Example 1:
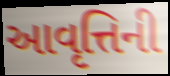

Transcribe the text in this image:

આવૃત્તિની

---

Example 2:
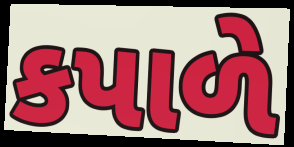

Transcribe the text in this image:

કપાળે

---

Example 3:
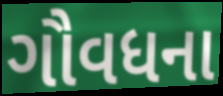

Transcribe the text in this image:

ગૌવધના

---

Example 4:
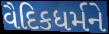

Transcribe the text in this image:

વૈદિકધર્મને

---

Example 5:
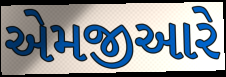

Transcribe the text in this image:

એમજીઆરે